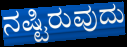
ನಷ್ಟಿರುವುದು